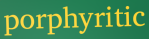
porphyritic